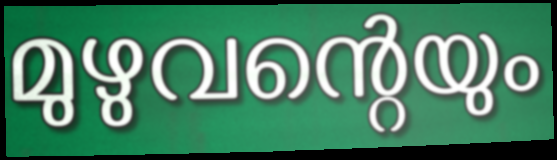
മുഴുവന്റെയും